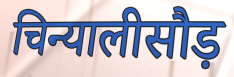
चिन्यालीसौड़